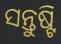
ସନ୍ତୁଷ୍ଟି